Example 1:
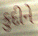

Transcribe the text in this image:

કુદીને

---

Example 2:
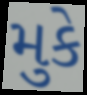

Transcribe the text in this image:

મુકે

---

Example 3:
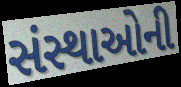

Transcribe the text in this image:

સંસ્થાઓની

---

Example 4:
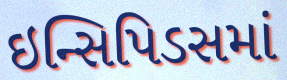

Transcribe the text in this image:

ઇન્સિપિડસમાં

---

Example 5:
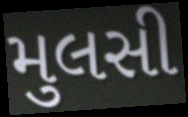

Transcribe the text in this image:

મુલસી